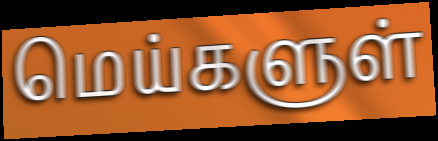
மெய்களுள்